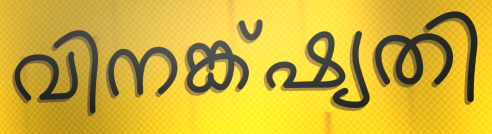
വിനങ്ക്ഷ്യതി